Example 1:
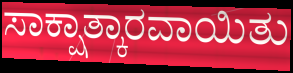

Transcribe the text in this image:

ಸಾಕ್ಷಾತ್ಕಾರವಾಯಿತು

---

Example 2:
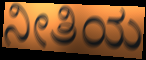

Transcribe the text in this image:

ನೀತಿಯ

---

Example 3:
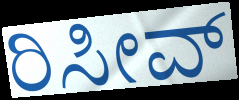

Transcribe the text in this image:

ರಿಸೀವ್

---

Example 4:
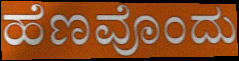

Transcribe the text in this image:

ಹೆಣವೊಂದು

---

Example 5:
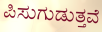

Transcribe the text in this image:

ಪಿಸುಗುಡುತ್ತವೆ